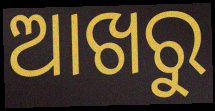
ଆଖରୁ